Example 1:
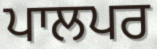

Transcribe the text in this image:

ਪਾਲਪਰ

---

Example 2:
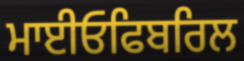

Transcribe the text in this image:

ਮਾਈਓਫਿਬਰਿਲ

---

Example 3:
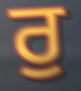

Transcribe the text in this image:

ਰੁ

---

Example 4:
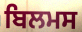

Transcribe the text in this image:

ਬਿਲਮਸ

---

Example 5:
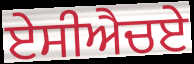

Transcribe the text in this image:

ਏਸੀਐਚਏ